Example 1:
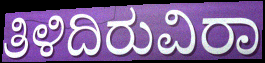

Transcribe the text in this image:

ತಿಳಿದಿರುವಿರಾ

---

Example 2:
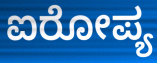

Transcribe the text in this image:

ಐರೋಪ್ಯ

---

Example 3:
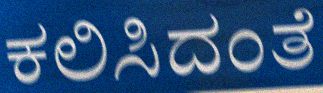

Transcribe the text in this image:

ಕಲಿಸಿದಂತೆ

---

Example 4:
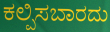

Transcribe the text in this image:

ಕಲ್ಪಿಸಬಾರದು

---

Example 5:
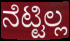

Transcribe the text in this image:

ನೆಟ್ಟಿಲ್ಲ